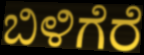
ಬಿಳಿಗೆರೆ